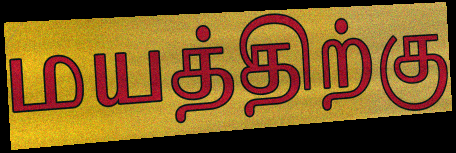
மயத்திற்கு